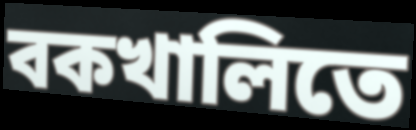
বকখালিতে